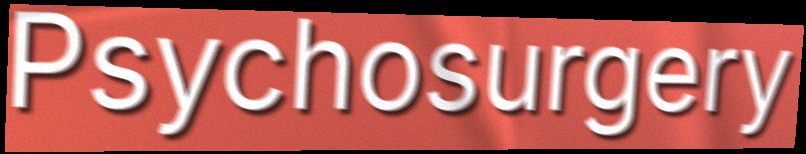
Psychosurgery